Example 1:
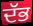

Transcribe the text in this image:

ਦੱਭ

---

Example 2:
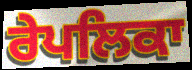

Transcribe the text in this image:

ਰੇਪਲਿਕਾ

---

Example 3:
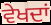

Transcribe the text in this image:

ਵੇਖਦਾਂ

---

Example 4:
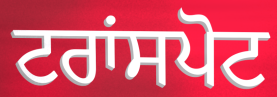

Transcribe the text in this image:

ਟਰਾਂਸਪੋਟ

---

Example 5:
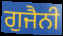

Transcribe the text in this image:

ਗੁਜੈਨੀ